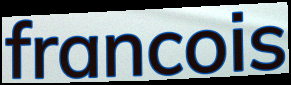
francois